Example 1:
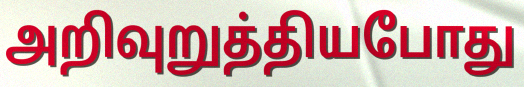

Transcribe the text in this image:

அறிவுறுத்தியபோது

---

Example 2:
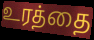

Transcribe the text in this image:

உரத்தை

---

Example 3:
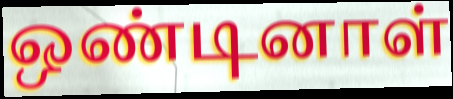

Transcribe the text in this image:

ஒண்டினாள்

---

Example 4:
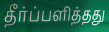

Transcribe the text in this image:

தீர்ப்பளித்தது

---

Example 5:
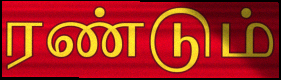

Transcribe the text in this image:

ரண்டும்